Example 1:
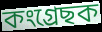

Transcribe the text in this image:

কংগ্ৰেছক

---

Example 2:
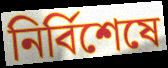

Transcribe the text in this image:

নিৰ্বিশেষে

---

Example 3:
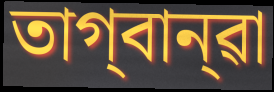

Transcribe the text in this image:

তাগ্‌বান্‌ৱা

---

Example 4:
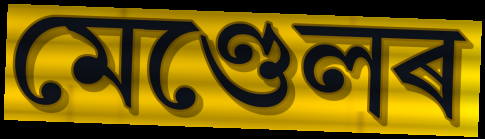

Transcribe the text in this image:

মেণ্ডেলৰ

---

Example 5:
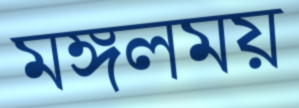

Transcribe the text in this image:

মঙ্গলময়